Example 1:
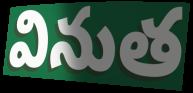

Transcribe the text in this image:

వినుత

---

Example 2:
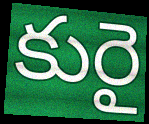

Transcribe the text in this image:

కురై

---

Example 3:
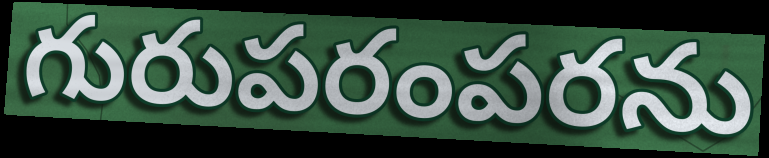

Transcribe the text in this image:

గురుపరంపరను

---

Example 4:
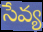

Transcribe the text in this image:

సేవ్య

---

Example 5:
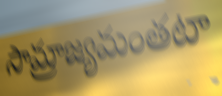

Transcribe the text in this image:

సామ్రాజ్యమంతటా